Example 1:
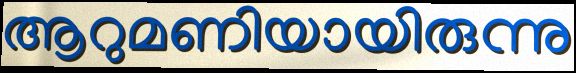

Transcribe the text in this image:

ആറുമണിയായിരുന്നു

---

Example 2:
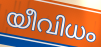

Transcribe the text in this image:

യീവിധം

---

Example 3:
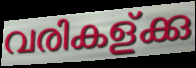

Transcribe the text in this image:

വരികള്ക്കു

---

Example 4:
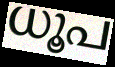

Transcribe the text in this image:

ധൂപ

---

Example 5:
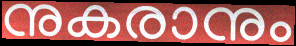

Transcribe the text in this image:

നുകരാനും